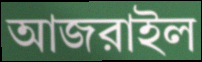
আজরাইল